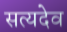
सत्यदेव